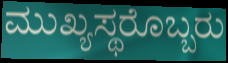
ಮುಖ್ಯಸ್ಥರೊಬ್ಬರು